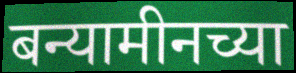
बन्यामीनच्या